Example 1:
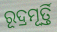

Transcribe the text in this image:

ରୂଦ୍ରମୂର୍ତ୍ତି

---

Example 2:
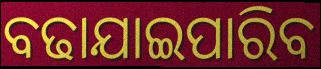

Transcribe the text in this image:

ବଢାଯାଇପାରିବ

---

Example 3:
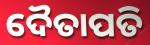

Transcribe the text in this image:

ଦୈତାପତି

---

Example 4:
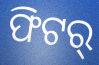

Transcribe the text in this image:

ଫିଟର୍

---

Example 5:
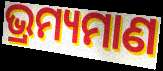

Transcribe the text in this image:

ଭ୍ରମ୍ୟମାଣ